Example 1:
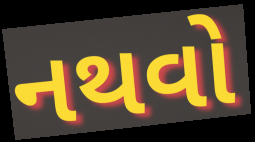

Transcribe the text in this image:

નથવો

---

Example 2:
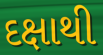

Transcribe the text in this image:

દક્ષાથી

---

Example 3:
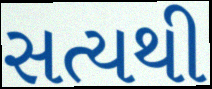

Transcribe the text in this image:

સત્યથી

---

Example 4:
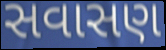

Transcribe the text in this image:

સવાસણ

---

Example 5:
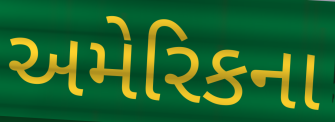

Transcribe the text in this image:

અમેરિકના